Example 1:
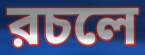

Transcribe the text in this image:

রচলে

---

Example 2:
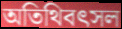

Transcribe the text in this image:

অতিথিবৎসল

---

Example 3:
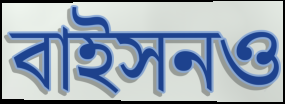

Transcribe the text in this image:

বাইসনও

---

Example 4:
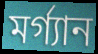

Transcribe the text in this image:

মর্গ্যান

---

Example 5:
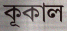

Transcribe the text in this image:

কূকাল